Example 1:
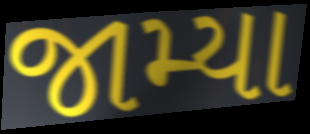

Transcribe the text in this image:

જામ્યા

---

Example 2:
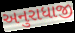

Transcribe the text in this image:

અનુરાધાજી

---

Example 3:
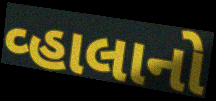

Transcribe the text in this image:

વ્હાલાનો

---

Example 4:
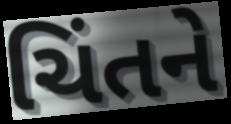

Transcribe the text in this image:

ચિંતને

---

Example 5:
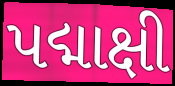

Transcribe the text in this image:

પદ્માક્ષી